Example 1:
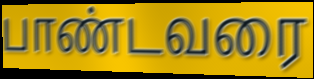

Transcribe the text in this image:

பாண்டவரை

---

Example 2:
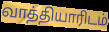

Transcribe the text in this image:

வாத்தியாரிடம்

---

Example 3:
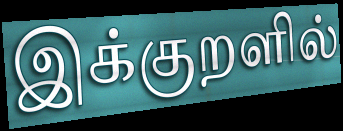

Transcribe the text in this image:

இக்குறளில்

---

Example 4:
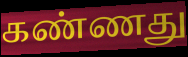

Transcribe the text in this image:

கண்ணது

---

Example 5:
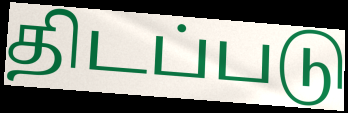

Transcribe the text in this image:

திடப்படு